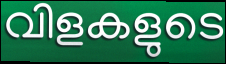
വിളകളുടെ